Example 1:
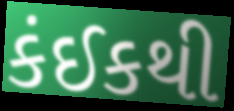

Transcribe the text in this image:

કંઈકથી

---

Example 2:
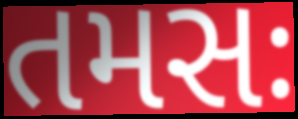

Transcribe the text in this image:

તમસઃ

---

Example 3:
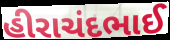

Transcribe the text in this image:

હીરાચંદભાઈ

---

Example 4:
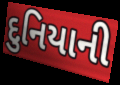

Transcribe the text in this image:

દુનિયાની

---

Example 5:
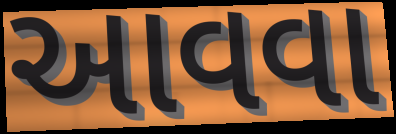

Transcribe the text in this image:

આવવા